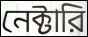
নেক্টারি